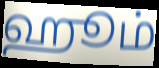
ஹூம்